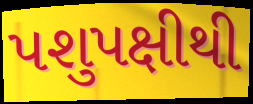
પશુપક્ષીથી